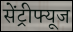
सेंट्रीफ्यूज